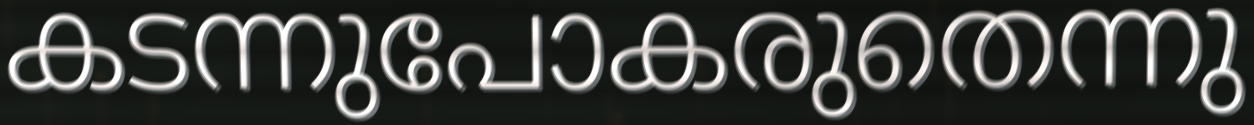
കടന്നുപോകരുതെന്നു